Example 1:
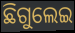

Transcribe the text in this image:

ଛିଗୁଲେଇ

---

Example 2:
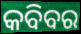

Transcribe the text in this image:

କବିବର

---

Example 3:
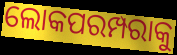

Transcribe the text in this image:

ଲୋକପରମ୍ପରାକୁ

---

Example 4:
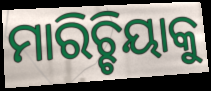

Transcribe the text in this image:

ମାରିଚ୍ଚିୟାକୁ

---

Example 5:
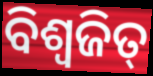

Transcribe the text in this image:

ବିଶ୍ୱଜିତ୍